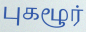
புகழூர்